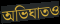
অভিঘাতও